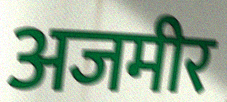
अजमीर